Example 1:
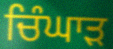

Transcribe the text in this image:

ਚਿੰਘਾੜ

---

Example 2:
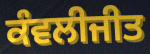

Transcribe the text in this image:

ਕੰਵਲੀਜੀਤ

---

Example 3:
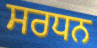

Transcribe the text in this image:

ਸਰਧਨ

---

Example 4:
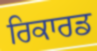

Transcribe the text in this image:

ਰਿਕਾਰਡ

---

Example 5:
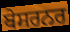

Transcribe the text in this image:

ਬੇਸਰਨਰ